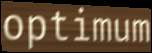
optimum